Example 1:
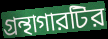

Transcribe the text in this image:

গ্রন্থাগারটির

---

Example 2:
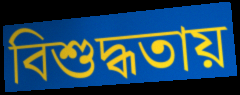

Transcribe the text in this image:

বিশুদ্ধতায়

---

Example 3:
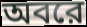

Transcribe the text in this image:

অবরে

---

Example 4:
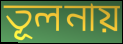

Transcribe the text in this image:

তূলনায়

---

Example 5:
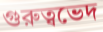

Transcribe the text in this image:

গুরুত্বভেদ